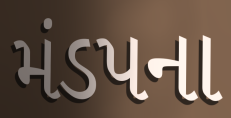
મંડપના